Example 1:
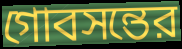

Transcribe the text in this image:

গোবসন্তের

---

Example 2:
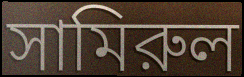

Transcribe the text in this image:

সামিরুল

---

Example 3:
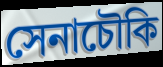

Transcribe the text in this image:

সেনাচৌকি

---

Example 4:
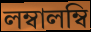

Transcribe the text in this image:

লম্বালম্বি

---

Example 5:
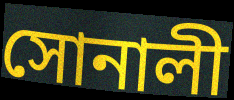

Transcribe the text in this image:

সোনালী